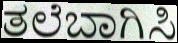
ತಲೆಬಾಗಿಸಿ